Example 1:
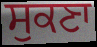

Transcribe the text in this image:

ਸੁਕਣਾ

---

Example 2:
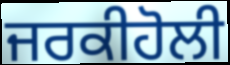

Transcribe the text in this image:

ਜਰਕੀਹੋਲੀ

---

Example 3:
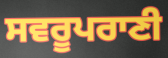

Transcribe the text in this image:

ਸਵਰੂਪਰਾਣੀ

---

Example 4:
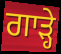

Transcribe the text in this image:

ਗਾੜ੍ਹੇ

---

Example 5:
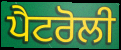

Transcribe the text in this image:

ਪੈਟਰੋਲੀ